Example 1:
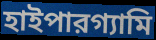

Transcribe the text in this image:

হাইপারগ্যামি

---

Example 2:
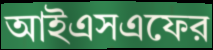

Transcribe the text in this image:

আইএসএফের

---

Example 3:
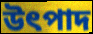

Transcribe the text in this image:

উৎপাদ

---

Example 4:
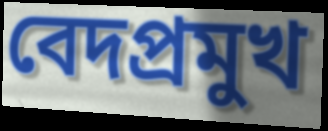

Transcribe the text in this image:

বেদপ্রমুখ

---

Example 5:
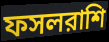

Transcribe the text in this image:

ফসলরাশি